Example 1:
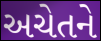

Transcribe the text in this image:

અચેતને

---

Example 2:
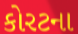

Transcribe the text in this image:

કોરટના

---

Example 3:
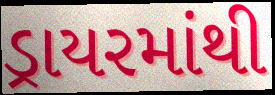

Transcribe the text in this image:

ડ્રાયરમાંથી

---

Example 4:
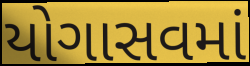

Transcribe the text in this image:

યોગાસવમાં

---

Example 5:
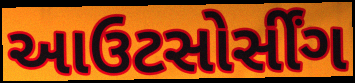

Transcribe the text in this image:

આઉટસોર્સીંગ